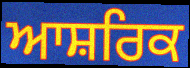
ਆਸ਼ਰਿਕ